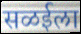
सळईला